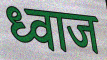
ध्वाज